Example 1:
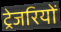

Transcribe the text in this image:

ट्रेजरियों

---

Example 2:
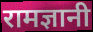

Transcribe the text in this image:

रामज्ञानी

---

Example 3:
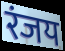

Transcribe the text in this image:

रंजय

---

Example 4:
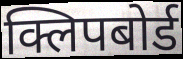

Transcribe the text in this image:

क्लिपबोर्ड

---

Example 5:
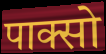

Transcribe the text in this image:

पाक्सो